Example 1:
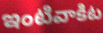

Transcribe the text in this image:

ఇంటివాకిట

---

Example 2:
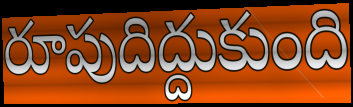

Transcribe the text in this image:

రూపుదిద్దుకుంది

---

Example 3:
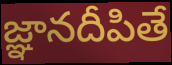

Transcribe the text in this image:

జ్ఞానదీపితే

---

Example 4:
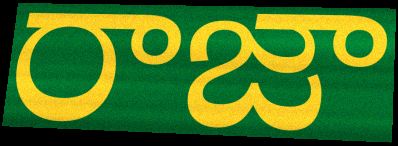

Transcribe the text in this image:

రాజా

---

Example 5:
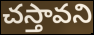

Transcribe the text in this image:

చస్తావని